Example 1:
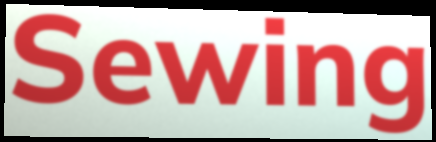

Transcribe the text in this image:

Sewing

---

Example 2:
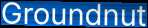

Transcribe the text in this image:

Groundnut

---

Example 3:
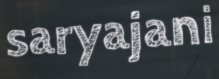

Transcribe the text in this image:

saryajani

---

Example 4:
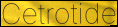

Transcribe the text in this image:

Cetrotide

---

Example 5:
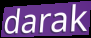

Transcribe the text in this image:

darak